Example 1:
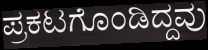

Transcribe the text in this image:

ಪ್ರಕಟಗೊಂಡಿದ್ದವು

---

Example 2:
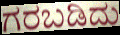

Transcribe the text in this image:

ಗರಬಡಿದು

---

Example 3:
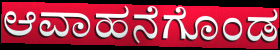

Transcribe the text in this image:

ಆವಾಹನೆಗೊಂಡ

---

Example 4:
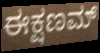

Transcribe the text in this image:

ಈಕ್ಷಣಮ್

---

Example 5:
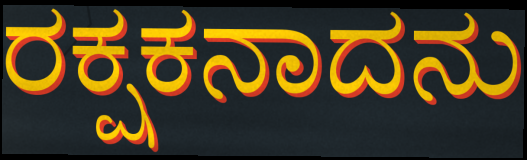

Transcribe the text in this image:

ರಕ್ಷಕನಾದನು